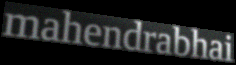
mahendrabhai